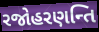
રજોહરણન્તિ